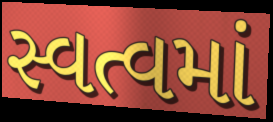
સ્વત્વમાં